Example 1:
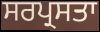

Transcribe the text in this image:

ਸਰਪ੍ਰਸਤਾ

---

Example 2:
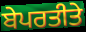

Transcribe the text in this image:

ਬੇਪਰਤੀਤੇ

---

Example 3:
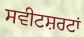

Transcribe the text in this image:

ਸਵੀਟਸ਼ਰਟਾਂ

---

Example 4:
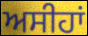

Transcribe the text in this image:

ਅਸੀਹਾਂ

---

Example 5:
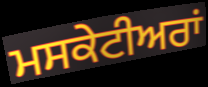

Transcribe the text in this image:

ਮਸਕੇਟੀਅਰਾਂ